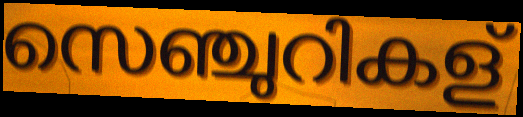
സെഞ്ചുറികള്